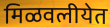
मिळवलीयेत